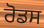
ਰੋਡਸ